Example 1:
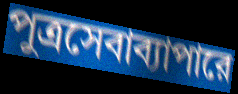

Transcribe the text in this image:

পুত্রসেবাব্যাপারে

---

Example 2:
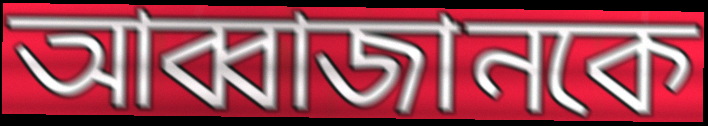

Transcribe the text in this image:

আব্বাজানকে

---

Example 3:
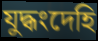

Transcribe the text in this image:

যুদ্ধংদেহি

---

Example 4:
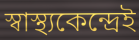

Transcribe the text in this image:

স্বাস্থ্যকেন্দ্রেই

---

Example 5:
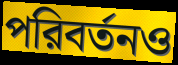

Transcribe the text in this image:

পরিবর্তনও